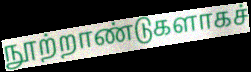
நூற்றாண்டுகளாகச்